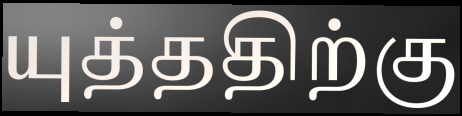
யுத்ததிற்கு